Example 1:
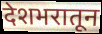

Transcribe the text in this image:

देशभरातून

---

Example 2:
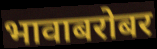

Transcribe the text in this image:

भावाबरोबर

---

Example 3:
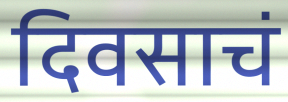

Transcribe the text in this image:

दिवसाचं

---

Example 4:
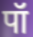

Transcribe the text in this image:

पॉ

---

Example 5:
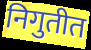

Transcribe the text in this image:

निगुतीत